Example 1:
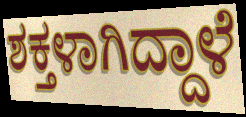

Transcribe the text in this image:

ಶಕ್ತಳಾಗಿದ್ದಾಳೆ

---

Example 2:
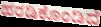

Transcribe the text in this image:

ಹರಡಿಕೊಂಡಿದೆ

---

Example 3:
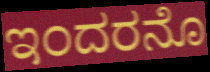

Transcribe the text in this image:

ಇಂದರನೊ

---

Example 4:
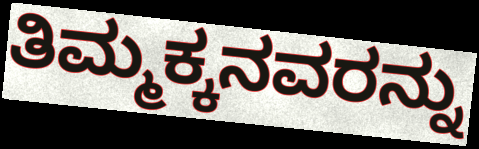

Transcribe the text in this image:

ತಿಮ್ಮಕ್ಕನವರನ್ನು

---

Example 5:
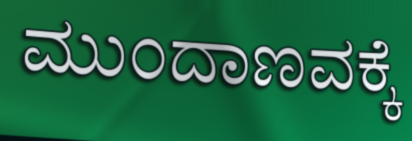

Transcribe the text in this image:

ಮುಂದಾಣವಕ್ಕೆ